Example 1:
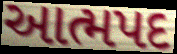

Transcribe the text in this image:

આત્મપદ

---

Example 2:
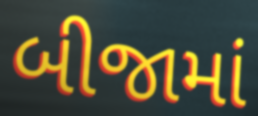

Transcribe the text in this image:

બીજામાં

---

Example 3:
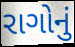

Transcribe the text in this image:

રાગોનું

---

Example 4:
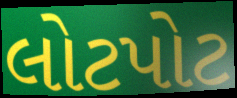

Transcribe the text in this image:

લોટપોટ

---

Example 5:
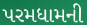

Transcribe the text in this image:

પરમધામની